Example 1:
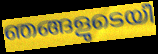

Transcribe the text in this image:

ഞങ്ങളുടെയീ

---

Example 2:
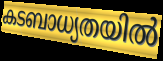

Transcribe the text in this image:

കടബാധ്യതയിൽ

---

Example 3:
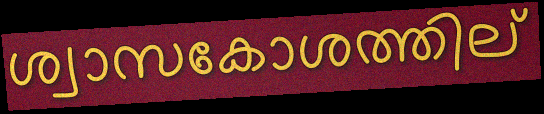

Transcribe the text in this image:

ശ്വാസകോശത്തില്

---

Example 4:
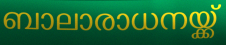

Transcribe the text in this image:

ബാലാരാധനയ്ക്ക്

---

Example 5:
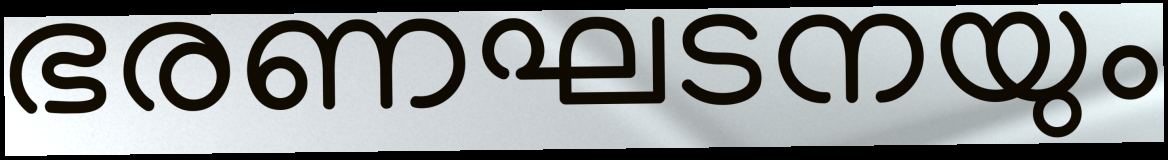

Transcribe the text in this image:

ഭരണഘടനയും